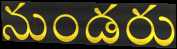
నుండరు